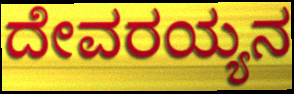
ದೇವರಯ್ಯನ